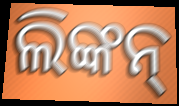
ଲିଙ୍କନ୍